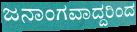
ಜನಾಂಗವಾದ್ದರಿಂದ